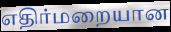
எதிர்மறையான